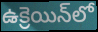
ఉక్రెయిన్‌లో